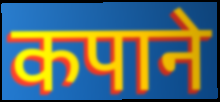
कपाने